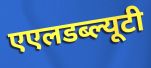
एएलडब्ल्यूटी